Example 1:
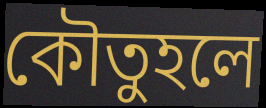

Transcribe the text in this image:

কৌতুহলে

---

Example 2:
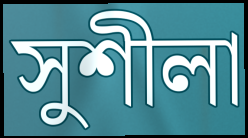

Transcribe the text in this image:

সুশীলা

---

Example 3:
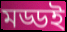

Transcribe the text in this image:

মড্ডই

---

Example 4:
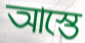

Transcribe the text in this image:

আস্তে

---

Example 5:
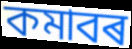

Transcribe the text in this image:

কমাবৰ